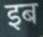
इब